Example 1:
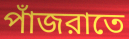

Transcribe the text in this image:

পাঁজরাতে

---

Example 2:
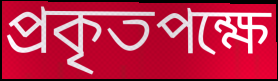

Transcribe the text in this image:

প্রকৃতপক্ষে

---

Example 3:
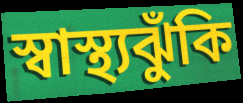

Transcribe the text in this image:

স্বাস্থ্যঝুঁকি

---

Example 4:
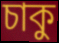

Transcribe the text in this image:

চাকু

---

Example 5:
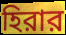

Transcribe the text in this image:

হিরার